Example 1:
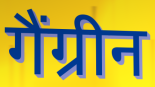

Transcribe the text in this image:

गैंग्रीन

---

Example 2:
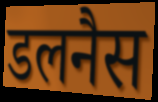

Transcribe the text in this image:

डलनैस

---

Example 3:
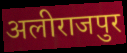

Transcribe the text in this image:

अलीराजपुर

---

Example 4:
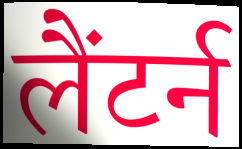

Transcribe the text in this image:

लैंटर्न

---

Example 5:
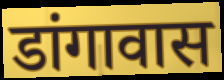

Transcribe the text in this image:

डांगावास